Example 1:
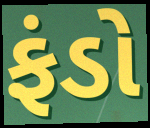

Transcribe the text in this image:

ફંડો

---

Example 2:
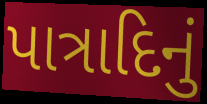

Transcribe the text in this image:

પાત્રાદિનું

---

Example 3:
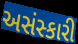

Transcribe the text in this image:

અસંસ્કારી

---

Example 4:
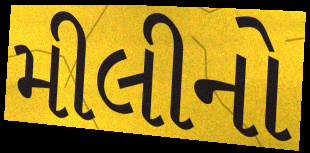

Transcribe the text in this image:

મીલીનો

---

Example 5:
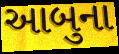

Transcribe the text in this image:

આબુના